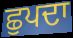
ਛੁਪਦਾ